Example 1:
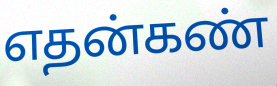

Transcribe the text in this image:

எதன்கண்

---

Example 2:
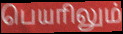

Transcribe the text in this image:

பெயரிலும்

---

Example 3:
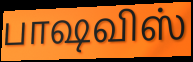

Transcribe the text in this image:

பாஷவிஸ்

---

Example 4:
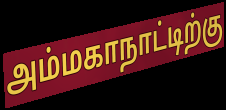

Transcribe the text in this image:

அம்மகாநாட்டிற்கு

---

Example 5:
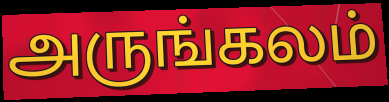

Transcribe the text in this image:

அருங்கலம்